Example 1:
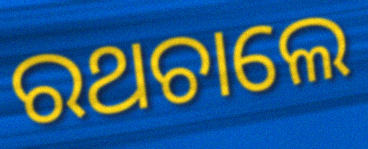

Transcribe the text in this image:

ରଥଚାଲେ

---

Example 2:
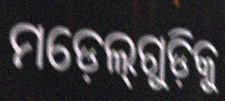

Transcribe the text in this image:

ମଡ଼େଲ୍‌ଗୁଡ଼ିକୁ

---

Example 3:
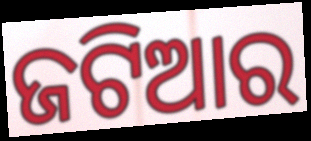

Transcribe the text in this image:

ଜଟିଆର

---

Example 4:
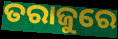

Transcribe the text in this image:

ତରାଜୁରେ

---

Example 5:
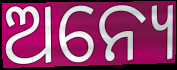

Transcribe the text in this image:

ଅନ୍ୟେ